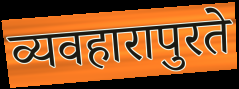
व्यवहारापुरते